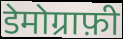
डेमोग्राफ़ी